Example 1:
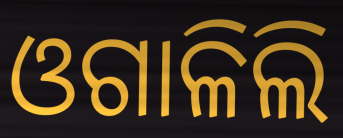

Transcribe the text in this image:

ଓଗାଳିଲି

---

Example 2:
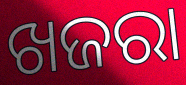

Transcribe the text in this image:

ଖଜରା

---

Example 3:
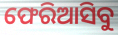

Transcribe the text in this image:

ଫେରିଆସିବୁ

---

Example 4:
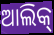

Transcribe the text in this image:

ଆଲିକ୍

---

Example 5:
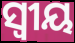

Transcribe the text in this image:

ସ୍ବୀୟ